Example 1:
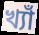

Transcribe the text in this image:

খ্যাঁ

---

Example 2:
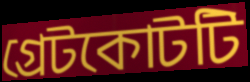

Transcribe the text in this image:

গ্রেটকোটটি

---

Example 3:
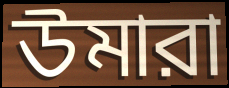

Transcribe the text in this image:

উমারা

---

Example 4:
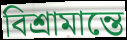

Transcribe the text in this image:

বিশ্রামান্তে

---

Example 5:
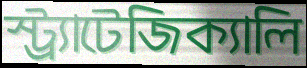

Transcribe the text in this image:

স্ট্র্যাটেজিক্যালি